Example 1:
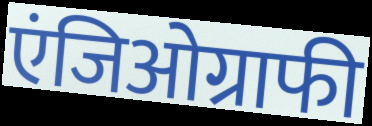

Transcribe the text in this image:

एंजिओग्राफी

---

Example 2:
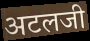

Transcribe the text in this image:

अटलजी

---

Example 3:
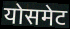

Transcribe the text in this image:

योसमेट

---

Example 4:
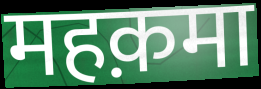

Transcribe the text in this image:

महक़मा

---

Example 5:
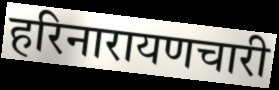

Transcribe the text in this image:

हरिनारायणचारी